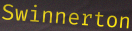
Swinnerton